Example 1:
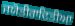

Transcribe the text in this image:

ਜਯੋਤੀਰਾਦਿਤੀਆ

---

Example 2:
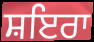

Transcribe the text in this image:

ਸ਼ਇਰਾ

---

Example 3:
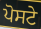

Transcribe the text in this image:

ਪੋਸਟੇ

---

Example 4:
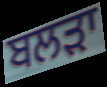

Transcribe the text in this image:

ਬਲੜਾ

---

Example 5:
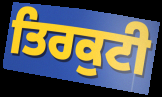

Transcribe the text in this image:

ਤਿਰਕੁਟੀ